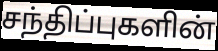
சந்திப்புகளின்